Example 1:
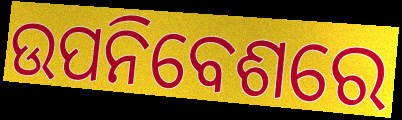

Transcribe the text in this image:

ଉପନିବେଶରେ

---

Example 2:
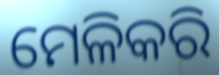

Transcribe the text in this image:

ମେଳିକରି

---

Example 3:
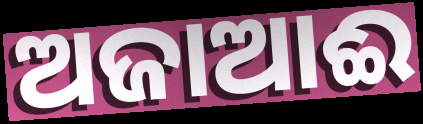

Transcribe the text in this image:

ଅଜାଆଈ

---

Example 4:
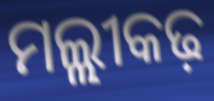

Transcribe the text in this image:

ମଲ୍ଲୀକଢ଼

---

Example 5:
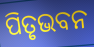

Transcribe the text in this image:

ପିତୃଭବନ